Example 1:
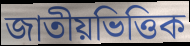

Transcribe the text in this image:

জাতীয়ভিত্তিক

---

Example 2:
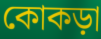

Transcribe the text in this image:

কোকড়া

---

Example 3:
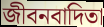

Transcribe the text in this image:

জীবনবাদিতা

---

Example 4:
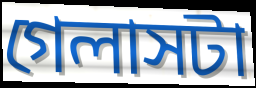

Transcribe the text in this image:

গেলাসটা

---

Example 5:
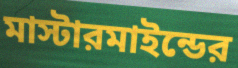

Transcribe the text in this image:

মাস্টারমাইন্ডের